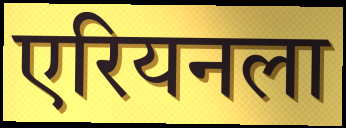
एरियनला